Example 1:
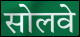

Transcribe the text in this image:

सोलवे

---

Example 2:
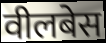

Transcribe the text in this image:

वीलबेस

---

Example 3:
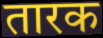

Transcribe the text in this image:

तारक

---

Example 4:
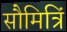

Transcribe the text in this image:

सौमित्रिं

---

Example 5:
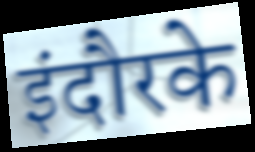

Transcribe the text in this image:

इंदौरके